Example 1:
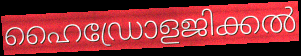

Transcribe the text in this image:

ഹൈഡ്രോളജിക്കൽ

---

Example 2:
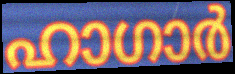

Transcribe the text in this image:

ഹാഗാർ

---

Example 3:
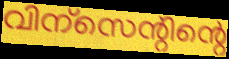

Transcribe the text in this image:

വിന്സെന്റിന്റെ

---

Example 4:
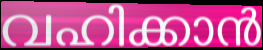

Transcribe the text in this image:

വഹിക്കാൻ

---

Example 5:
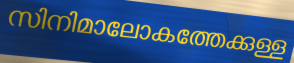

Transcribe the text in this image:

സിനിമാലോകത്തേക്കുള്ള